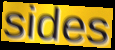
sides